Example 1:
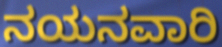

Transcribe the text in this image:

ನಯನವಾರಿ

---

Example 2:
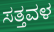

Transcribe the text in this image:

ಸತ್ತವಳ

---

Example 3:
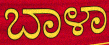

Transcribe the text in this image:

ಬಾಳಾ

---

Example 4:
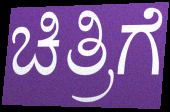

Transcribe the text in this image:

ಚಿತ್ರಿಗೆ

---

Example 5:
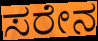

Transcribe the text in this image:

ಸರೇನ